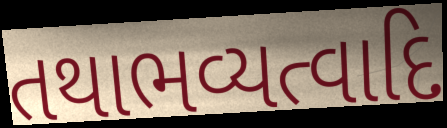
તથાભવ્યત્વાદિ